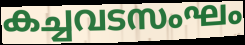
കച്ചവടസംഘം